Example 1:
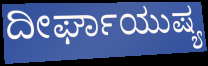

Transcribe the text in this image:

ದೀರ್ಘಾಯುಷ್ಯ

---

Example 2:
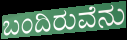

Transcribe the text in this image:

ಬಂದಿರುವೆನು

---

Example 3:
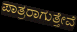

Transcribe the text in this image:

ಪಾತ್ರರಾಗುತ್ತೇವೆ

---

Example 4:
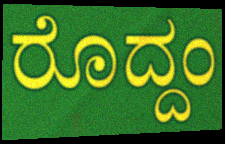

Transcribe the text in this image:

ರೊದ್ದಂ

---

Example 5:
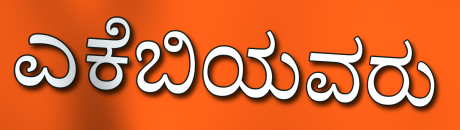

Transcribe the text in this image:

ಎಕೆಬಿಯವರು